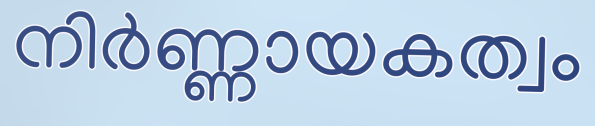
നിർണ്ണായകത്വം